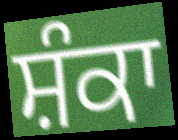
ਸ਼ੰਕਾ